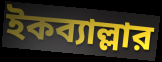
ইকব্যাল্লার